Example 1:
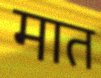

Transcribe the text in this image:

मात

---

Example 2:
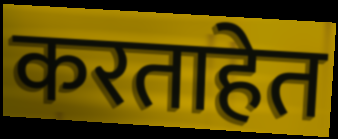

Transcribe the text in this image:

करताहेत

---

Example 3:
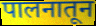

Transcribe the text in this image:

पालनातून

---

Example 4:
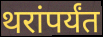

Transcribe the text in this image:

थरांपर्यंत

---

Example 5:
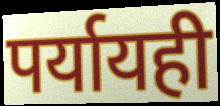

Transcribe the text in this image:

पर्यायही